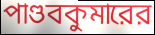
পাণ্ডবকুমারের